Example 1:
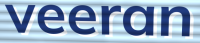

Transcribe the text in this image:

veeran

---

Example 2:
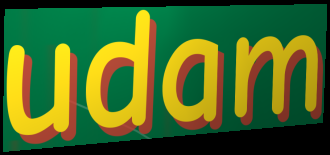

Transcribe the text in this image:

udam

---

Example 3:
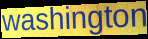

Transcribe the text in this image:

washington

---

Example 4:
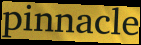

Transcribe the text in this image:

pinnacle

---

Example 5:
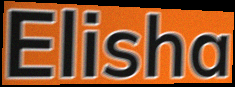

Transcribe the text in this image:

Elisha